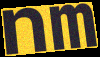
nm